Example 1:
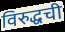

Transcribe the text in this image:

विरुद्धची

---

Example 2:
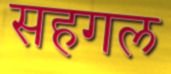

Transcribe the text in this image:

सहगल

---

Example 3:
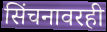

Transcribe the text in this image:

सिंचनावरही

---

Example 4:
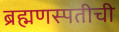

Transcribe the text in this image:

ब्रह्मणस्पतीची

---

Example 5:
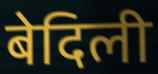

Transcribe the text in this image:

बेदिली